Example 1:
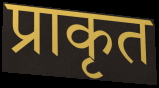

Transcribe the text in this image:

प्राकृत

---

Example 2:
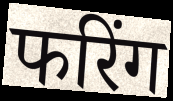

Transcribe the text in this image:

फरिंग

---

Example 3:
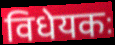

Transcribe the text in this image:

विधेयकः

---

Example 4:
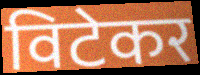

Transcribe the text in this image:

विटेकर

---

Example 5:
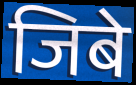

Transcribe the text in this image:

जिबे